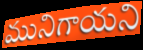
మునిగాయని